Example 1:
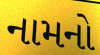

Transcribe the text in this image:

નામનો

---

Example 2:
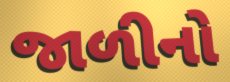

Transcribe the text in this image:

જાળીનો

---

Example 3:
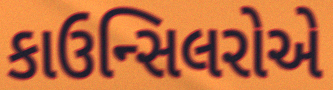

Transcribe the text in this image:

કાઉન્સિલરોએ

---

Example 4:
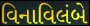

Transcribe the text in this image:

વિનાવિલંબે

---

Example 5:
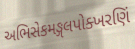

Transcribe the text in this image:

અભિસેકમઙ્ગલપોક્ખરણિં